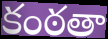
కంఠతా